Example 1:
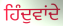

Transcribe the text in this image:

ਹਿੰਦੁਵਾਂਦੇ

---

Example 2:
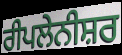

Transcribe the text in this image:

ਰੀਪਲੇਨੀਸ਼ਰ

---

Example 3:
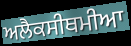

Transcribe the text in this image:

ਅਲੈਕਸੀਥਮੀਆ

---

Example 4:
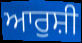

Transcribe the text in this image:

ਆਰੁਸ਼ੀ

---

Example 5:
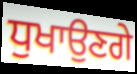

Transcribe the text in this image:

ਧੁਖਾਉਣਗੇ